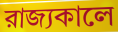
রাজ্যকালে